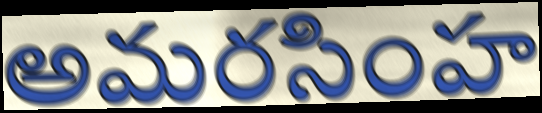
అమరసింహ